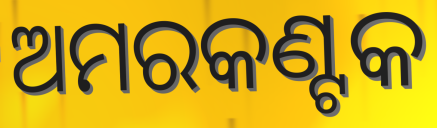
ଅମରକଣ୍ଟକ